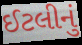
ઈટલીનું